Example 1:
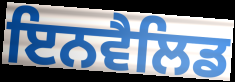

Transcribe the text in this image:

ਇਨਵੈਲਿਡ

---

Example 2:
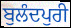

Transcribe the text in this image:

ਬੁਲੰਦਪੁਰੀ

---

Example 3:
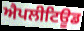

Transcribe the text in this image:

ਐਪਲੀਟਿਊਡ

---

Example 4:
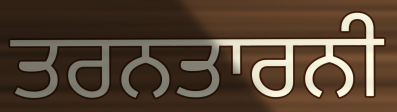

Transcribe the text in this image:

ਤਰਨਤਾਰਨੀ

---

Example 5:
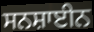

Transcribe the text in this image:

ਸਨਸ਼ਾਈਨ